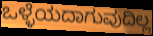
ಒಳ್ಳೆಯದಾಗುವುದಿಲ್ಲ